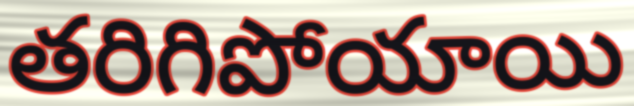
తరిగిపోయాయి